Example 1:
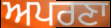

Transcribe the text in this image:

ਅਪਰਣਾ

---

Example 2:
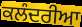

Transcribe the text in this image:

ਕਲੰਦਰੀਆ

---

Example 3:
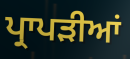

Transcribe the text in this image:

ਪ੍ਰਾਪੜੀਆਂ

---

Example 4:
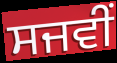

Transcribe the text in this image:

ਸਜਵੀਂ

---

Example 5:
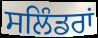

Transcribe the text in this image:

ਸਲਿੰਡਰਾਂ